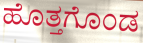
ಹೊತ್ತಗೊಂಡ